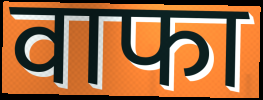
वाफा